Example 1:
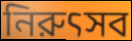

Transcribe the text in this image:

নিরুৎসব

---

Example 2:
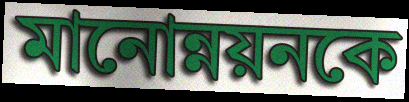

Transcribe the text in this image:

মানোন্নয়নকে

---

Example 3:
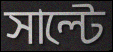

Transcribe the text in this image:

সাল্টে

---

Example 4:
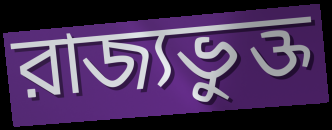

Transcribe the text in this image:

রাজ্যভুক্ত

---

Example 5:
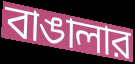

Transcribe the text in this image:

বাঙালার